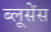
ब्लूसेंस